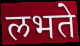
लभते